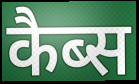
कैब्स